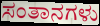
ಸಂತಾನಗಳು